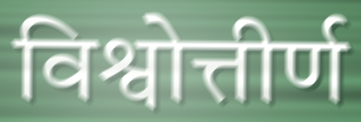
विश्वोत्तीर्ण